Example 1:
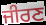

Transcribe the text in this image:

ਜੀਰਣ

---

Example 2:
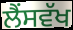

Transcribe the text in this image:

ਲੈਂਸਵੱਖ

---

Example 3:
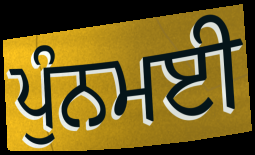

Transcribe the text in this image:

ਪੁੰਨਮਈ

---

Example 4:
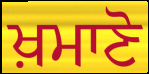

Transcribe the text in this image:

ਖ਼ਮਾਣੋ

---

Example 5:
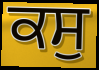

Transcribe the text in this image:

ਕਸੁ